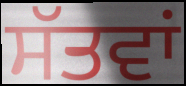
ਸੱਤਵਾਂ